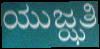
ಯುಜ್ಝತಿ